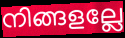
നിങ്ങളല്ലേ